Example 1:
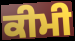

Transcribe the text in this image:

ਕੀਮੀ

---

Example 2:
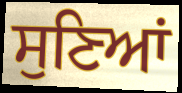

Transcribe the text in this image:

ਸੁਣਿਆਂ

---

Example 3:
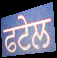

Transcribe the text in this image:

ਫਟੇਲ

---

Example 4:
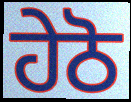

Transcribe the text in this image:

ਹੇਠੋ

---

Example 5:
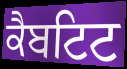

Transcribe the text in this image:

ਕੈਬਟਿਟ